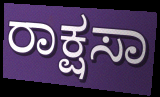
ರಾಕ್ಷಸಾ